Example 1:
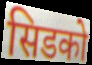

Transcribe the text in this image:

सिडको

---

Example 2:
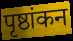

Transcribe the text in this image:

पृष्ठांकन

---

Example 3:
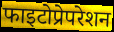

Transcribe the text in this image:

फाइटोप्रेपरेशन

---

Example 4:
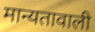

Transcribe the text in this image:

मान्यतावाली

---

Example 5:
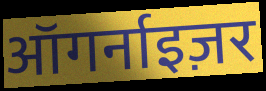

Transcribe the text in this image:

ऑगर्नाइज़र